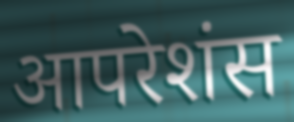
आपरेशंस